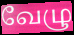
வேழு